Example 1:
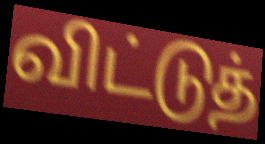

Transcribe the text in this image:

விட்டுத்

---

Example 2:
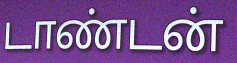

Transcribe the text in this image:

டாண்டன்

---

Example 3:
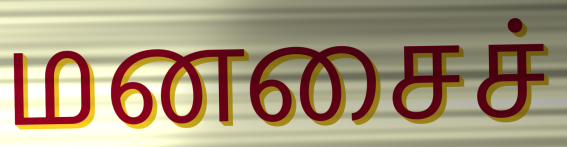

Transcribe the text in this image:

மனசைச்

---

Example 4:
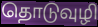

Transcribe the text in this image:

தொடுவுழி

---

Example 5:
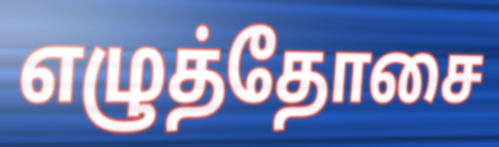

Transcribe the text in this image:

எழுத்தோசை